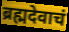
ब्रह्मदेवाचं